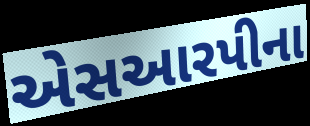
એસઆરપીના